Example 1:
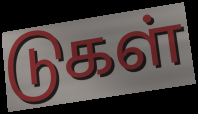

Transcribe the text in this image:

டுகள்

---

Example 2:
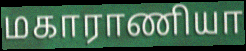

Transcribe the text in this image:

மகாராணியா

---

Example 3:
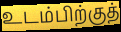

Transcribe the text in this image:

உடம்பிற்குத்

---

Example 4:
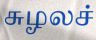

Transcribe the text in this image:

சுழலச்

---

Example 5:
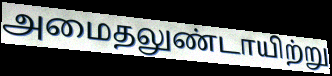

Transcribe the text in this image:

அமைதலுண்டாயிற்று